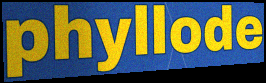
phyllode